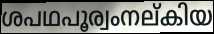
ശപഥപൂര്വംനല്കിയ